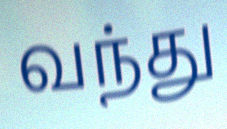
வந்து